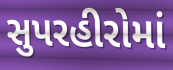
સુપરહીરોમાં